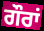
ਗੌਰਾਂ